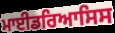
ਮਾਈਡਰਿਆਸਿਸ